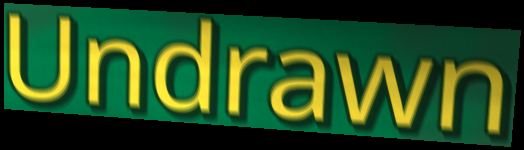
Undrawn